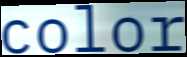
color